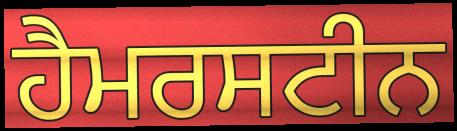
ਹੈਮਰਸਟੀਨ